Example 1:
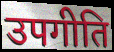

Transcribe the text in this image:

उपगीति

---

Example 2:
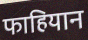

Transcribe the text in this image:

फाहियान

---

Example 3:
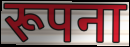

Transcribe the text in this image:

रूपना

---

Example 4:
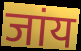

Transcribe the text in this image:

जांय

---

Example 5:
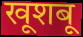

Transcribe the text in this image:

खूशबू